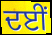
ਦਈਂ